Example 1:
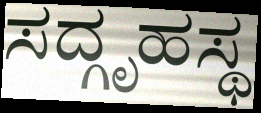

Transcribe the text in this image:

ಸದ್ಗೃಹಸ್ಥ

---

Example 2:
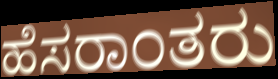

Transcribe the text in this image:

ಹೆಸರಾಂತರು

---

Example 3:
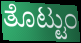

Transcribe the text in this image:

ತೊಟ್ಟುಂ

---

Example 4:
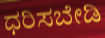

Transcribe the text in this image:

ಧರಿಸಬೇಡಿ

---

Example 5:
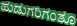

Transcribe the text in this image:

ಹುಡುಗರಿಗಂತೂ